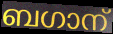
ബഗാന്